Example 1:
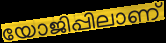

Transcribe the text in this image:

യോജിപ്പിലാണ്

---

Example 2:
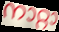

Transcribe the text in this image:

നാറ്റാ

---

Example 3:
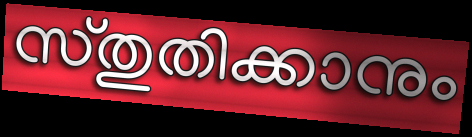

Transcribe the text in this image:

സ്തുതിക്കാനും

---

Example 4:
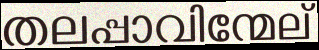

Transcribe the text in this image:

തലപ്പാവിന്മേല്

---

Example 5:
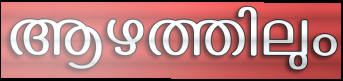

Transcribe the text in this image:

ആഴത്തിലും